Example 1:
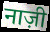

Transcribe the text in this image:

नाज़ी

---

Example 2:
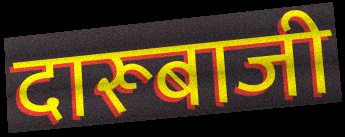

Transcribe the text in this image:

दारूबाजी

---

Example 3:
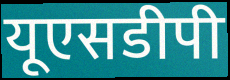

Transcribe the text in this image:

यूएसडीपी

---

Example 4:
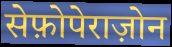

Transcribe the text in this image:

सेफ़ोपेराज़ोन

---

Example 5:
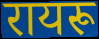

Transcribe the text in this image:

रायरू